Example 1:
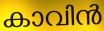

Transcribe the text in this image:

കാവിൻ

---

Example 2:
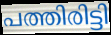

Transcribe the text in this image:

പത്തിരിട്ടി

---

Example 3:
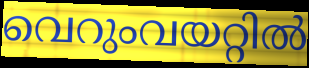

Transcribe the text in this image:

വെറുംവയറ്റിൽ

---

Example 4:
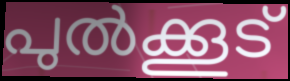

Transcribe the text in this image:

പുൽക്കൂട്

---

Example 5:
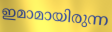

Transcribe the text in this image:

ഇമാമായിരുന്ന